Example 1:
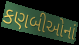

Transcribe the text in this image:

કણબીઓનાં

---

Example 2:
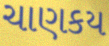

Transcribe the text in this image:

ચાણકય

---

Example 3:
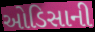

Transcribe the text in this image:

ઓડિસાની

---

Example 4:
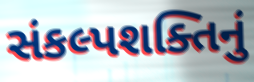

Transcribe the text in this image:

સંકલ્પશક્તિનું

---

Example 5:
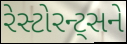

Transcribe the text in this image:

રેસ્ટોરન્ટ્સને